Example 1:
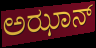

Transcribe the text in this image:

ಅಝಾನ್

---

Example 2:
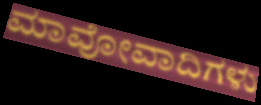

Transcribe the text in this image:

ಮಾವೋವಾದಿಗಳು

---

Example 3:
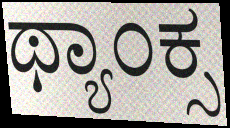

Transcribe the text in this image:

ಥ್ಯಾಂಕ್ಸ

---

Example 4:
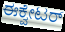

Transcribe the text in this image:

ಈಕ್ವೇಟರ್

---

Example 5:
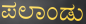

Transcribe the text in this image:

ಪಲಾಂಡು